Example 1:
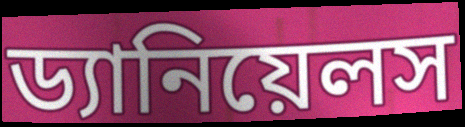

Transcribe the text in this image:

ড্যানিয়েলস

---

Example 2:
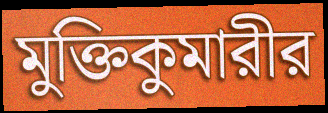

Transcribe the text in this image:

মুক্তিকুমারীর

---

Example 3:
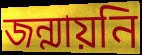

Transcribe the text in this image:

জন্মায়নি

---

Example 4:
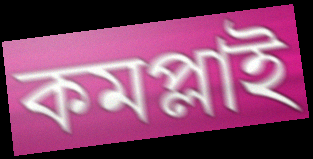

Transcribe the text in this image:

কমপ্লাই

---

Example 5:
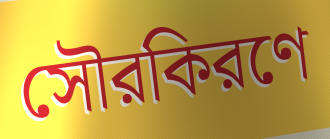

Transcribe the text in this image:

সৌরকিরণে